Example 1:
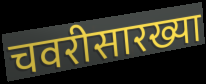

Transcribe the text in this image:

चवरीसारख्या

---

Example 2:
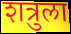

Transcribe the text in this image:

शत्रुला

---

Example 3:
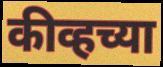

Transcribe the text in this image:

कीव्हच्या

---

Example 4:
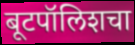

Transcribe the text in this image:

बूटपॉलिशचा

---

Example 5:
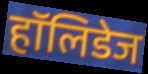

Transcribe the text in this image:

हॉलिडेज